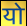
यो